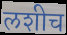
लशीच